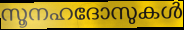
സൂനഹദോസുകൾ